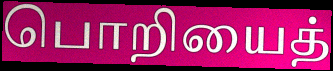
பொறியைத்